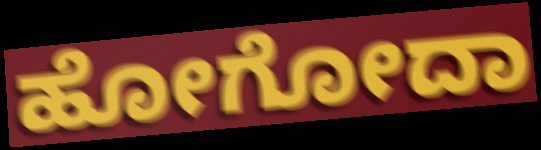
ಹೋಗೋದಾ